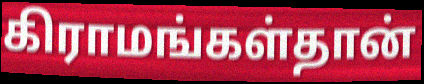
கிராமங்கள்தான்